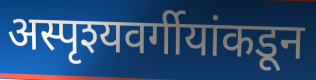
अस्पृश्यवर्गीयांकडून